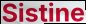
Sistine